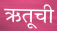
ऋतूची